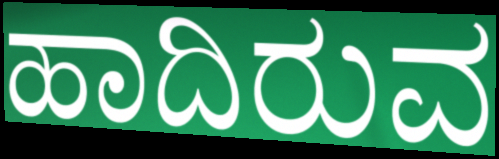
ಹಾದಿರುವ